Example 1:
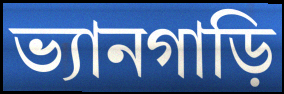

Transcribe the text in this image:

ভ্যানগাড়ি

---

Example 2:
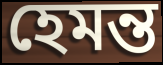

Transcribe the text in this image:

হেমন্ত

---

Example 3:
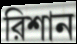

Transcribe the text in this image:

রিশান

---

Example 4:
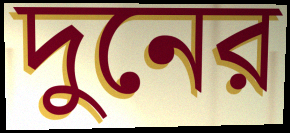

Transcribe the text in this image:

দুনের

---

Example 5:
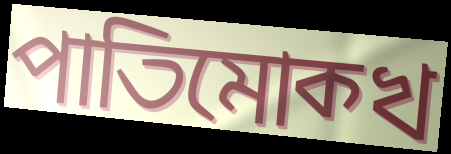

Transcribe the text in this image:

পাতিমোক্খ